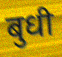
बुधी